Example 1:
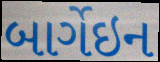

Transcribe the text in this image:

બાર્ગેઇન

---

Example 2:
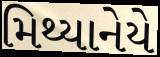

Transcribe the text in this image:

મિથ્યાનેયે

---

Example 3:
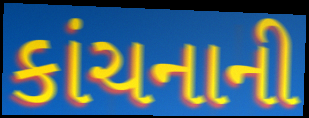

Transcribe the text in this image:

કાંચનાની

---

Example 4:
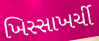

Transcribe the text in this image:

ખિસ્સાખર્ચી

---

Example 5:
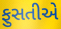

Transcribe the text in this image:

ફુસતીએ